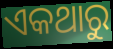
ଏକଥାରୁ